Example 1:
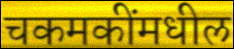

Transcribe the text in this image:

चकमकींमधील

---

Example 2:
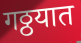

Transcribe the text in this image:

गठ्ठयात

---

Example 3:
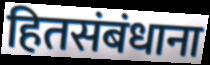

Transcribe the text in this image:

हितसंबंधाना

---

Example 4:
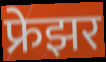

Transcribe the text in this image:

फ्रेझर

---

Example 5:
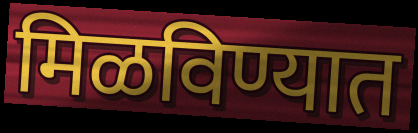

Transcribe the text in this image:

मिळविण्यात